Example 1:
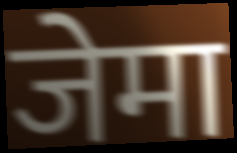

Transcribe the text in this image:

जेमा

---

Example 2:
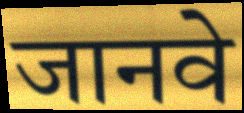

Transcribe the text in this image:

जानवे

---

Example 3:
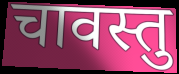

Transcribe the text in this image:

चावस्तु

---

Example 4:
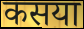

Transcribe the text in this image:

कसया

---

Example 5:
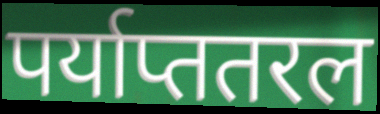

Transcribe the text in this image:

पर्याप्ततरल